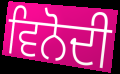
ਵਿਨੋਦੀ